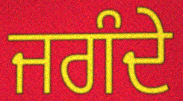
ਜਗੰਦੇ